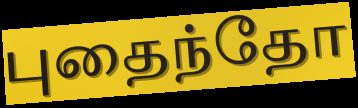
புதைந்தோ